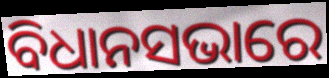
ବିଧାନସଭାରେ